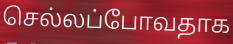
செல்லப்போவதாக